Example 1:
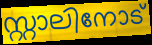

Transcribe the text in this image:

സ്റ്റാലിനോട്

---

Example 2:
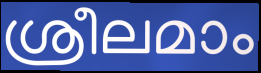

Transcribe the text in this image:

ശ്രീലമാം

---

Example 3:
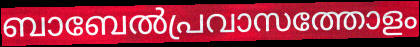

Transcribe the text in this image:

ബാബേൽപ്രവാസത്തോളം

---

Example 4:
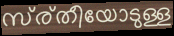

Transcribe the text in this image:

സ്ര്തീയോടുള്ള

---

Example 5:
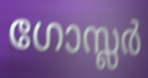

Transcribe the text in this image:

ഗോസ്ലർ